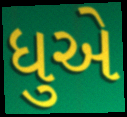
ધુએ